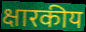
क्षारकीय